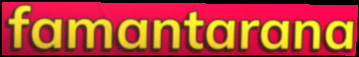
famantarana